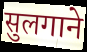
सुलगाने